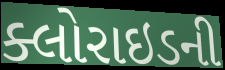
ક્લોરાઇડની